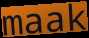
maak